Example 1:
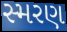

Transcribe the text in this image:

સ્‍મરણ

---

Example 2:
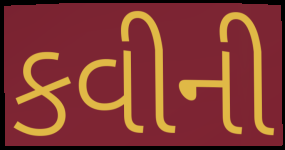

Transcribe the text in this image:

કવીની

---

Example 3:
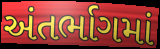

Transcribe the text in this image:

અંતર્ભાગમાં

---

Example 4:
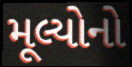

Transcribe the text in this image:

મૂલ્યોનો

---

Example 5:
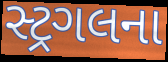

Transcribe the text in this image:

સ્ટ્રગલના